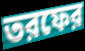
তরফের